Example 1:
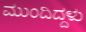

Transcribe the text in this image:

ಮುಂದಿದ್ದಳು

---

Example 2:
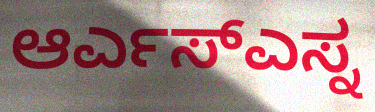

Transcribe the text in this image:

ಆರ್ಎಸ್ಎಸ್ನ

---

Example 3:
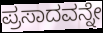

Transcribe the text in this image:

ಪ್ರಸಾದವನ್ನೇ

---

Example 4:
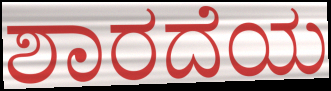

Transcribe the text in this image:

ಶಾರದೆಯ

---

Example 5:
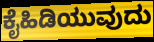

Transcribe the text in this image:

ಕೈಹಿಡಿಯುವುದು